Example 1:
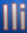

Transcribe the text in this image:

Ili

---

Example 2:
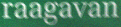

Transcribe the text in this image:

raagavan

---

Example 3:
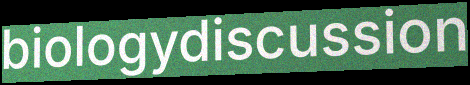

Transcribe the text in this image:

biologydiscussion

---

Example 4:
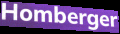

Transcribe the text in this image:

Homberger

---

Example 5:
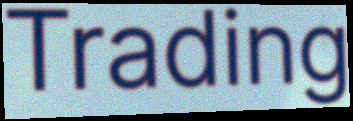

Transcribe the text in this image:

Trading